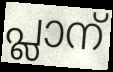
പ്ലാന്